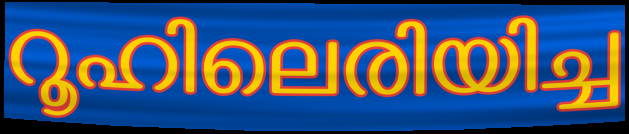
റൂഹിലെരിയിച്ച